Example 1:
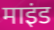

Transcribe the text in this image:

माइंड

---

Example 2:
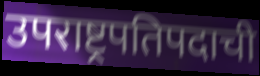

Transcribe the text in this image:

उपराष्ट्रपतिपदाची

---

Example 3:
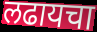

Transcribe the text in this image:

लढायचा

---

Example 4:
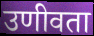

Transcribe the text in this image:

उणीवता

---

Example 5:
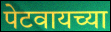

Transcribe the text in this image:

पेटवायच्या